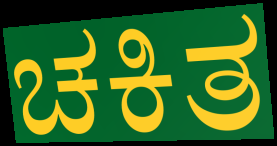
ಚಕಿತ